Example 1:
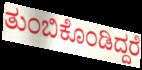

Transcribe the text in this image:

ತುಂಬಿಕೊಂಡಿದ್ದರೆ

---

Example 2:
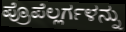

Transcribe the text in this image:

ಪ್ರೊಪೆಲ್ಲರ್ಗಳನ್ನು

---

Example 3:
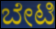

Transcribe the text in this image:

ಬೇಟಿ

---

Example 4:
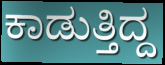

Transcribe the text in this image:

ಕಾಡುತ್ತಿದ್ದ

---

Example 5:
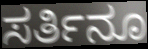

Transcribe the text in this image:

ಸರ್ತಿನೂ